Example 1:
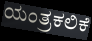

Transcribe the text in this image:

ಯಂತ್ರಕಲಿಕೆ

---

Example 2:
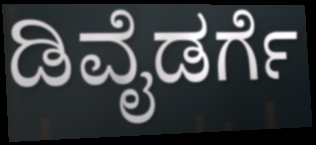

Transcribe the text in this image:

ಡಿವೈಡರ್ಗೆ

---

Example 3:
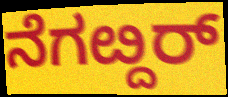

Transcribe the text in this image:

ನೆಗೞ್ದರ್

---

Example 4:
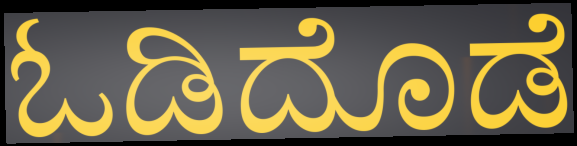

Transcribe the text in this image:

ಓಡಿದೊಡೆ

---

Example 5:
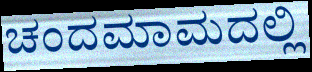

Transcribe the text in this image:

ಚಂದಮಾಮದಲ್ಲಿ